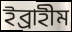
ইব্রাহীম